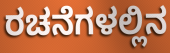
ರಚನೆಗಳಲ್ಲಿನ